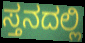
ಸ್ತನದಲ್ಲಿ